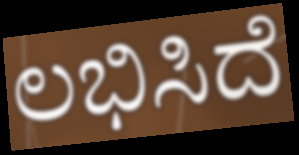
ಲಭಿಸಿದೆ